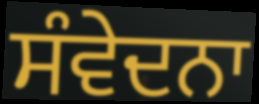
ਸੰਵੇਦਨਾ